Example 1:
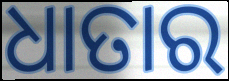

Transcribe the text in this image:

ଧାତାର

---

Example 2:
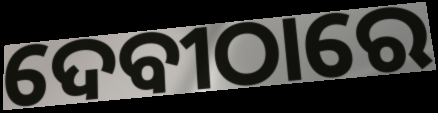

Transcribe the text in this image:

ଦେବୀଠାରେ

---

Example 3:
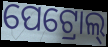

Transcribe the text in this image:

ପେଟ୍ରୋଲ୍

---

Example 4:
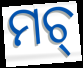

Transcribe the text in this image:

ମଚ୍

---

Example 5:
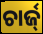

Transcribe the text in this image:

ଚାର୍ଜ୍